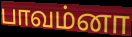
பாவம்னா